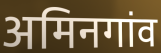
अमिनगांव